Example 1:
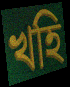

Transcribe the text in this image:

খহি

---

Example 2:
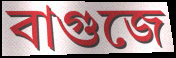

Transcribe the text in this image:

বাগুজে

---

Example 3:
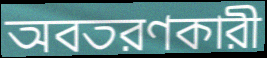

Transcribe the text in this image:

অবতরণকারী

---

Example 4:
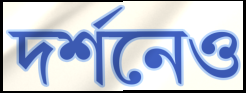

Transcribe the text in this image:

দর্শনেও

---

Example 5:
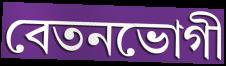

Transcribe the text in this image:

বেতনভোগী